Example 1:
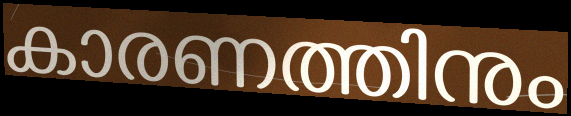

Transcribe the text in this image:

കാരണത്തിനും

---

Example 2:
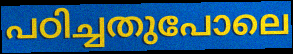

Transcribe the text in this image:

പഠിച്ചതുപോലെ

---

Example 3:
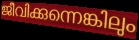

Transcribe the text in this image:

ജീവിക്കുന്നെങ്കിലും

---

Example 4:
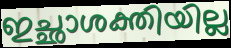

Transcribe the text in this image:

ഇച്ഛാശക്തിയില്ല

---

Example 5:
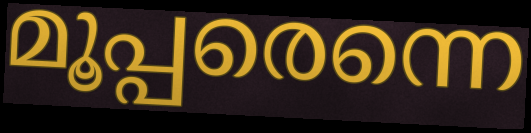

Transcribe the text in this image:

മൂപ്പരെന്നെ